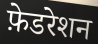
फ़ेडरेशन